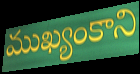
ముఖ్యంకాని